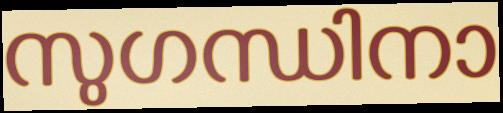
സുഗന്ധിനാ